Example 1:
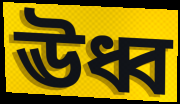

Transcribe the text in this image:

ঊধ্ব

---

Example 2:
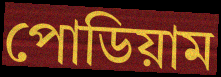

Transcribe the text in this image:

পোডিয়াম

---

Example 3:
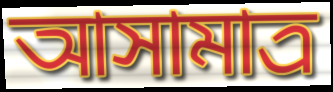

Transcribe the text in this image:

আসামাত্র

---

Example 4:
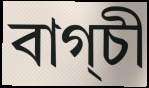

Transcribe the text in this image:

বাগ্চী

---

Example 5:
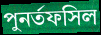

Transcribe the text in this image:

পুনর্তফসিল